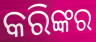
କରିଙ୍କର